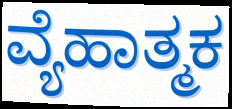
ವ್ಯೆಹಾತ್ಮಕ